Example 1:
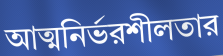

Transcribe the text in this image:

আত্মনির্ভরশীলতার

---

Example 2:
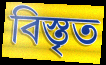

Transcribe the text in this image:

বিস্তৃত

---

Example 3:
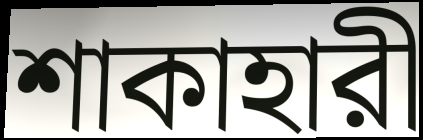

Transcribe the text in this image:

শাকাহারী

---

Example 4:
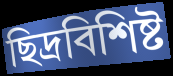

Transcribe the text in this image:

ছিদ্রবিশিষ্ট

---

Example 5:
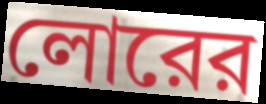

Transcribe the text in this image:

লোরের